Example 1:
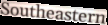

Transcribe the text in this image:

Southeastern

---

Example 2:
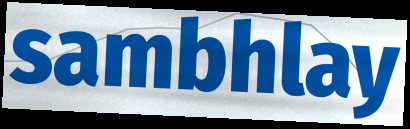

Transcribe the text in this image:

sambhlay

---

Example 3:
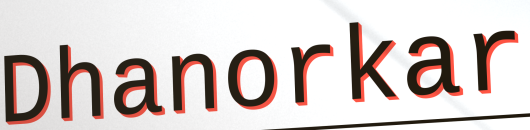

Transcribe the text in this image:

Dhanorkar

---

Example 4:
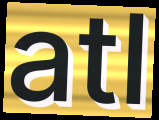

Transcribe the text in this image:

atl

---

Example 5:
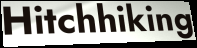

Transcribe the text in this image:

Hitchhiking